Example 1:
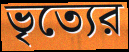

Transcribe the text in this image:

ভৃত্যের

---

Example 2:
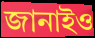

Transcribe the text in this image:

জানাইও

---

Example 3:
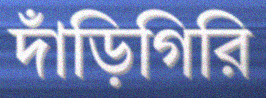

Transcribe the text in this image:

দাঁড়িগিরি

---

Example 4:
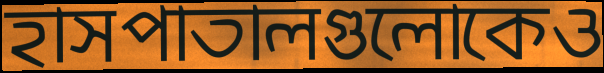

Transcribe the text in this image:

হাসপাতালগুলোকেও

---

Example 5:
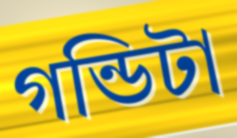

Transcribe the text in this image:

গন্ডিটা